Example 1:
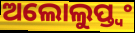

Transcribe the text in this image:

ଅଲୋଲୁପ୍ତ୍ୱଂ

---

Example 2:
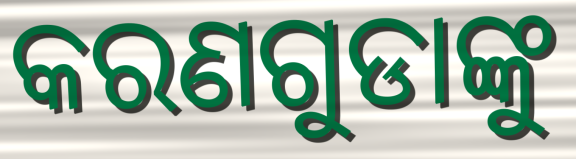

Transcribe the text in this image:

କରଣଗୁଡାଙ୍କୁ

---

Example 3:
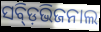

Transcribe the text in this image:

ସବ୍ଡ଼ିଭିଜନାଲ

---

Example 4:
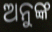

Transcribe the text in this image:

ଅନୁଙ୍କ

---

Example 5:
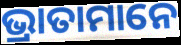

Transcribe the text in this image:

ଭ୍ରାତାମାନେ